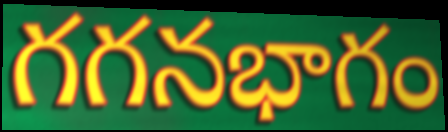
గగనభాగం